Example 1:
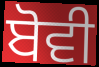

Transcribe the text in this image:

ਬੋਵੀ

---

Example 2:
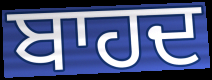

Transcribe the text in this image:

ਬਾਹਦ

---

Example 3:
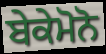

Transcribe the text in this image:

ਬੇਕੇਮੋਨੋ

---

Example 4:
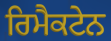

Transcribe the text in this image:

ਰਿਮੈਕਟੇਨ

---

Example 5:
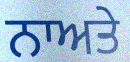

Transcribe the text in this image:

ਨਾਅਤੇ